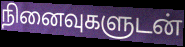
நினைவுகளுடன்